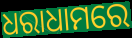
ଧରାଧାମରେ